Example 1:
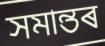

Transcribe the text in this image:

সমান্তৰ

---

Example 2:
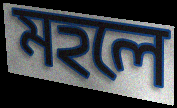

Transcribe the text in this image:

মহলে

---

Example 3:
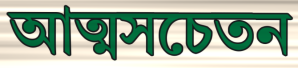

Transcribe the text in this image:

আত্মসচেতন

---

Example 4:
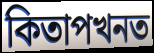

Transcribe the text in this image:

কিতাপখনত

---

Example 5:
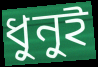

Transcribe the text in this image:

ধুনুই